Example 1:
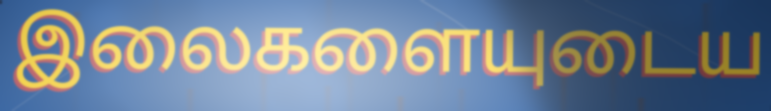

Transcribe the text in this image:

இலைகளையுடைய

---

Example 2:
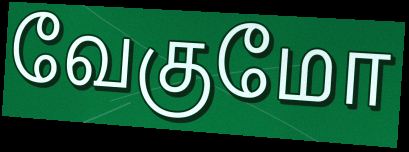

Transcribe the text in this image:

வேகுமோ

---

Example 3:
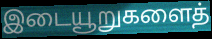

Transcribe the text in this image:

இடையூறுகளைத்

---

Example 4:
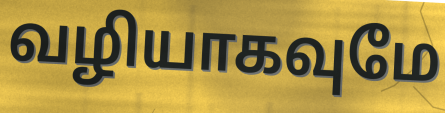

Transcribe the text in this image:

வழியாகவுமே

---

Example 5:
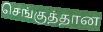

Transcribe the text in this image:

செங்குத்தான